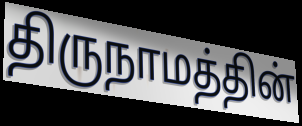
திருநாமத்தின்